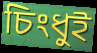
চিংধুই